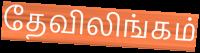
தேவிலிங்கம்